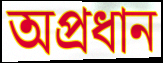
অপ্ৰধান